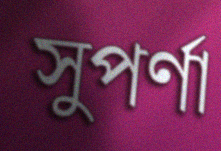
সুপর্ণা